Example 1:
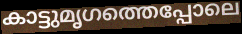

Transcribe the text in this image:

കാട്ടുമൃഗത്തെപ്പോലെ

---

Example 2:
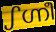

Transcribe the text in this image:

ഽഗ്നീ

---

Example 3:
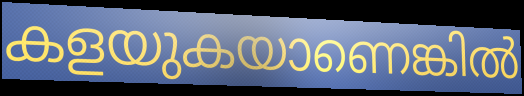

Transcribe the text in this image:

കളയുകയാണെങ്കിൽ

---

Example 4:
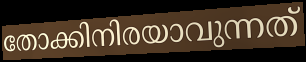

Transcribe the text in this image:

തോക്കിനിരയാവുന്നത്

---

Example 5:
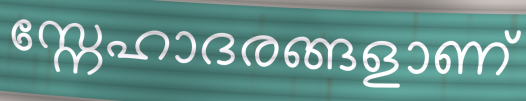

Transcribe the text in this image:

സ്നേഹാദരങ്ങളാണ്